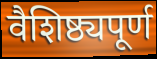
वैशिष्ठ्यपूर्ण